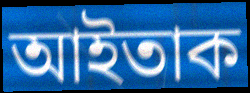
আইতাক